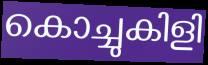
കൊച്ചുകിളി